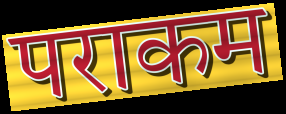
पराकम